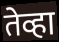
तेव्हा